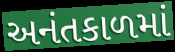
અનંતકાળમાં